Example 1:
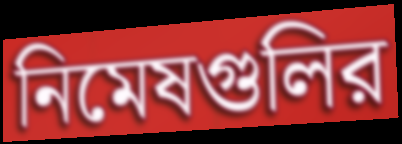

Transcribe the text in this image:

নিমেষগুলির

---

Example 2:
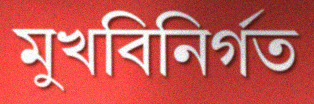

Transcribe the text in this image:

মুখবিনির্গত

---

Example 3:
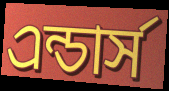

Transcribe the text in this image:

এন্ডার্স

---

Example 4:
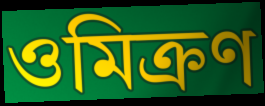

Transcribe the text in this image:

ওমিক্রণ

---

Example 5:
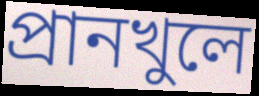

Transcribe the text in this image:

প্রানখুলে